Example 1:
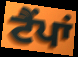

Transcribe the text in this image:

ਟੈਂਪਾਂ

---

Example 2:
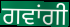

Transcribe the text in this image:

ਗਵਾਂਗੀ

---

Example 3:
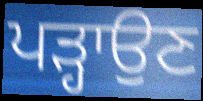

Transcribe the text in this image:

ਪੜ੍ਹਾਉਣ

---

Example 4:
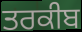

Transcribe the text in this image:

ਤਰਕੀਬ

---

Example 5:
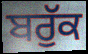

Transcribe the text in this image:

ਬਰੁੱਕ